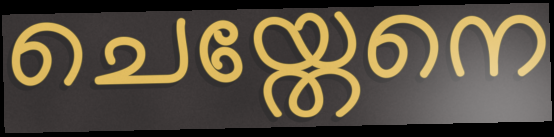
ചെയ്തേനെ